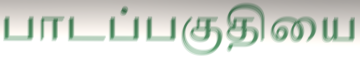
பாடப்பகுதியை